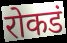
रोकडं